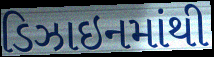
ડિઝાઇનમાંથી